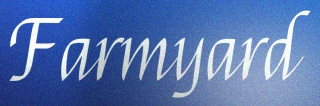
Farmyard